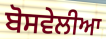
ਬੋਸਵੇਲੀਆ